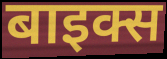
बाइक्स